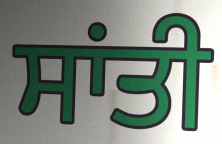
ਸਾਂਤੀ